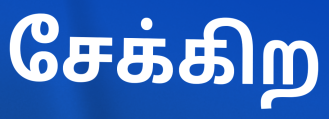
சேக்கிற